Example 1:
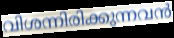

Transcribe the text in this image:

വിശന്നിരിക്കുന്നവൻ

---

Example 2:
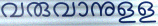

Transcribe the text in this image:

വരുവാനുളള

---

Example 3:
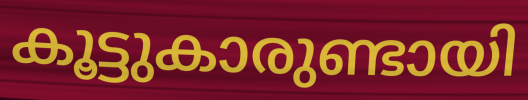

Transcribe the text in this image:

കൂട്ടുകാരുണ്ടായി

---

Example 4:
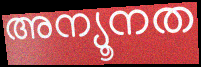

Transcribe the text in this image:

അന്യൂനത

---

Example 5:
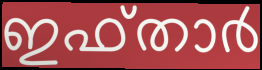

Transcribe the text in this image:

ഇഫ്താർ